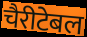
चैरीटेबल